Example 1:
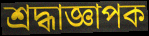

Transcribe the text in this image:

শ্রদ্ধাজ্ঞাপক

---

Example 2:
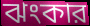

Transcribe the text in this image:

ঝংকার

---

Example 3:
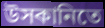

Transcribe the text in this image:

উসকানিতে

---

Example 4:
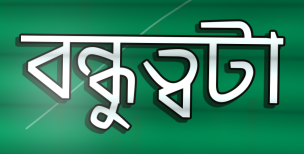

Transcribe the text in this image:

বন্ধুত্বটা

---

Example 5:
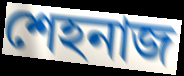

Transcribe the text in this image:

শেহনাজ